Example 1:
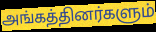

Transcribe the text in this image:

அங்கத்தினர்களும்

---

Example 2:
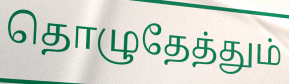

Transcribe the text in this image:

தொழுதேத்தும்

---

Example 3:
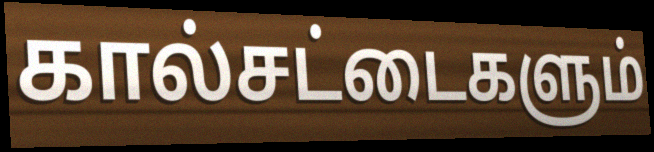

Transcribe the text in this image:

கால்சட்டைகளும்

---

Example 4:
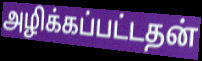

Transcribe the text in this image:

அழிக்கப்பட்டதன்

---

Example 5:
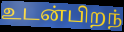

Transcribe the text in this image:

உடன்பிறந்